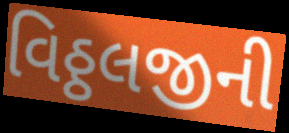
વિઠ્ઠલજીની